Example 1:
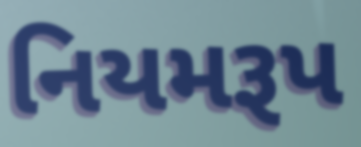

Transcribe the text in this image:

નિયમરૂપ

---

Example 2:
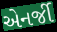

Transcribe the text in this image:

એનર્જી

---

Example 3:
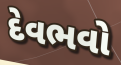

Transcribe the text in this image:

દેવભવો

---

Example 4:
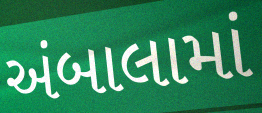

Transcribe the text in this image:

અંબાલામાં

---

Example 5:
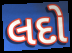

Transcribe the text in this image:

લદો